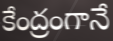
కేంద్రంగానే